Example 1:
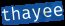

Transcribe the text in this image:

thayee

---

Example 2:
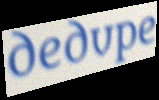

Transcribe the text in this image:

dedupe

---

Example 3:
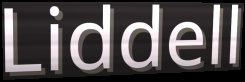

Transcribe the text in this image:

Liddell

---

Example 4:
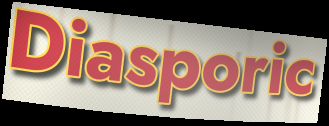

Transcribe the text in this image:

Diasporic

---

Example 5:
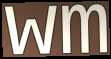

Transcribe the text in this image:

wm